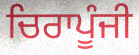
ਚਿਰਾਪੂੰਜੀ